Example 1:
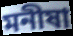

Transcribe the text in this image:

মনীষা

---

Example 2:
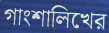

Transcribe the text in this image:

গাংশালিখের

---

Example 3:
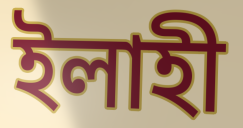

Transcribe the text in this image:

ইলাহী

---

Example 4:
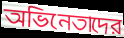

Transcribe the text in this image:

অভিনেতাদের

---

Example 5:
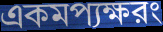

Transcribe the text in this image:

একমপ্যক্ষরং